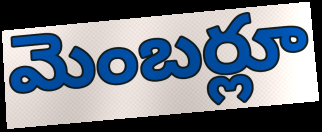
మెంబర్లూ